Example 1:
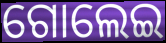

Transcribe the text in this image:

ଗୋଲେଇ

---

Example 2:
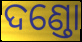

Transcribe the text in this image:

ଦଣ୍ଡୋ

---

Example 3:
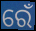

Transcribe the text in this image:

ରେଁ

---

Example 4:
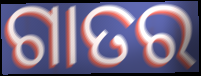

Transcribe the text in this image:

ଗାତର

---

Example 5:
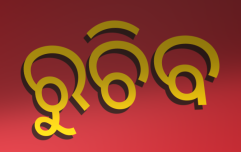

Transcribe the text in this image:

ରୁଚିବ